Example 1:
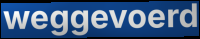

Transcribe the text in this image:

weggevoerd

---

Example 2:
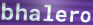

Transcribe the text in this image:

bhalero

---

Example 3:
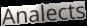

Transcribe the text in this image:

Analects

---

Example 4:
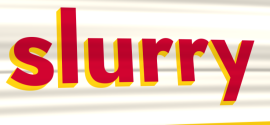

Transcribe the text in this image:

slurry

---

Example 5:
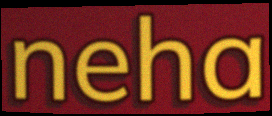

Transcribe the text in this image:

neha